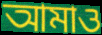
আমাও